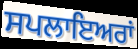
ਸਪਲਾਇਅਰਾਂ